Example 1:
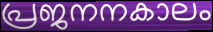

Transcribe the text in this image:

പ്രജനനകാലം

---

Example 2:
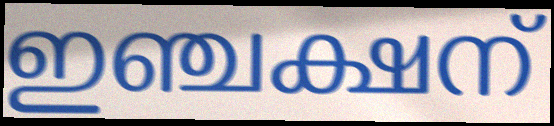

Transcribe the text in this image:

ഇഞ്ചക്ഷന്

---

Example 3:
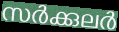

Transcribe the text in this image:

സർക്കുലർ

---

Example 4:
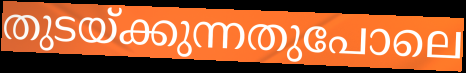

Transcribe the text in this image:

തുടയ്ക്കുന്നതുപോലെ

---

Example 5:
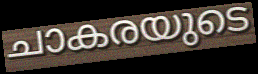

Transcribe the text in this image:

ചാകരയുടെ